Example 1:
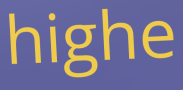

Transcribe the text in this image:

highe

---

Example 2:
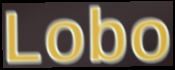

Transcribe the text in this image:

Lobo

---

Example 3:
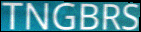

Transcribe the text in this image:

TNGBRS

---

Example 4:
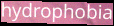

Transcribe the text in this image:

hydrophobia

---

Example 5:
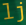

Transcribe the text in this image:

lj